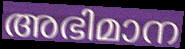
അഭിമാന